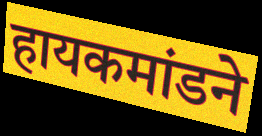
हायकमांडने